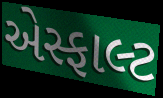
એસ્ફાલ્ટ